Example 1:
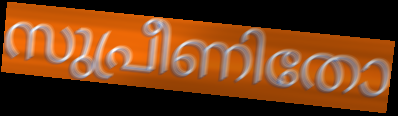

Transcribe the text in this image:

സുപ്രീണിതോ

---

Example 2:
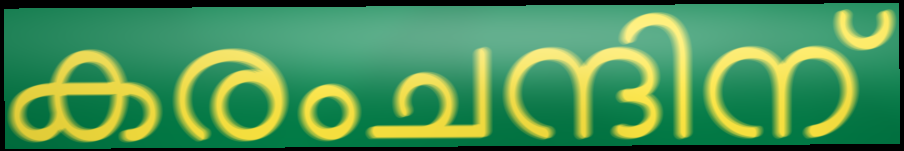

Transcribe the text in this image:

കരംചന്ദിന്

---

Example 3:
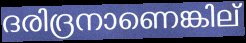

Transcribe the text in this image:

ദരിദ്രനാണെങ്കില്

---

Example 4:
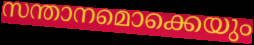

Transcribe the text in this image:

സന്താനമൊക്കെയും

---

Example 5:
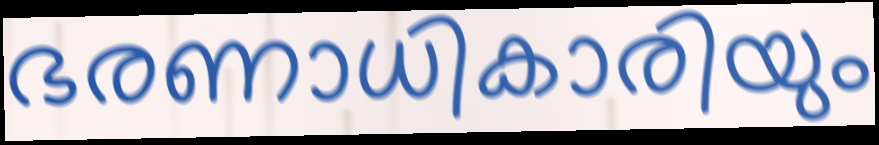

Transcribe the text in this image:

ഭരണാധികാരിയും